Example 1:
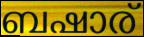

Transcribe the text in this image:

ബഷാര്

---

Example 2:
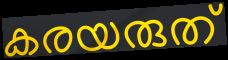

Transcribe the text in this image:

കരയരുത്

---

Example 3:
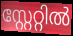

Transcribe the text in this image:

സ്റ്റേറ്റിൽ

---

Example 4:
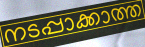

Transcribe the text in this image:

നടപ്പാക്കാത്ത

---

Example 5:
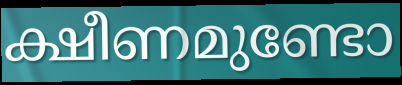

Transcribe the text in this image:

ക്ഷീണമുണ്ടോ